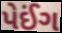
પેઈંગ